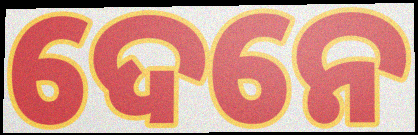
ଦେନେ